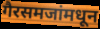
गैरसमजांमधून